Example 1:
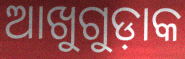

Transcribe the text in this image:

ଆଖୁଗୁଡ଼ାକ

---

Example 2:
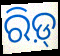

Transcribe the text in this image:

ରିଡ଼୍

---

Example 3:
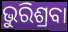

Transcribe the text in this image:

ଭୁରିଶ୍ରବା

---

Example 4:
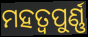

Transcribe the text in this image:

ମହତ୍ୱପୁର୍ଣ୍ଣ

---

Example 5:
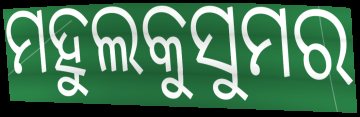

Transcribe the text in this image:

ମହୁଲକୁସୁମର